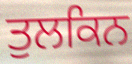
ਤੁਲਕਿਨ